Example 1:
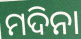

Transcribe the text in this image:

ମଦିନା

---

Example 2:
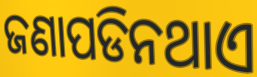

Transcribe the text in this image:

ଜଣାପଡିନଥାଏ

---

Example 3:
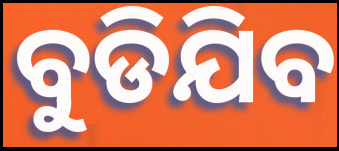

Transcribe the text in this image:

ବୁଡିଯିବ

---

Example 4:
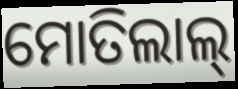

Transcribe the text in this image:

ମୋତିଲାଲ୍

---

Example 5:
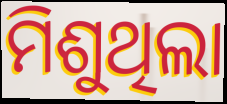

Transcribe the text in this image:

ମିଶୁଥିଲା